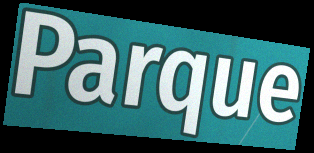
Parque